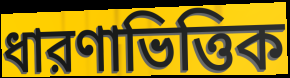
ধারণাভিত্তিক